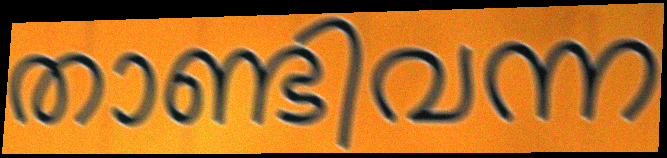
താണ്ടിവന്ന